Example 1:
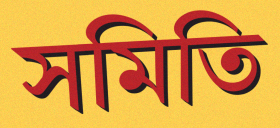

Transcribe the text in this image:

সমিতি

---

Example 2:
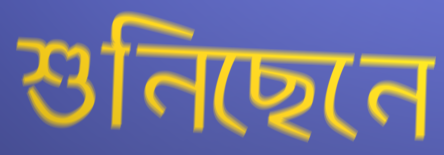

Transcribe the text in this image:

শুনিছেনে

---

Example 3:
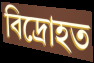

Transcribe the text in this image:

বিদ্ৰোহত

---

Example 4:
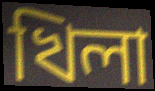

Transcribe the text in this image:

খিলা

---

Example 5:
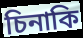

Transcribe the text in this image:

চিনাকি